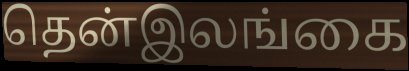
தென்இலங்கை